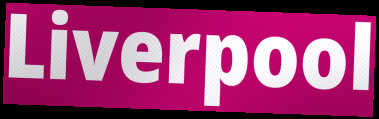
Liverpool